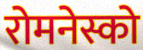
रोमनेस्को